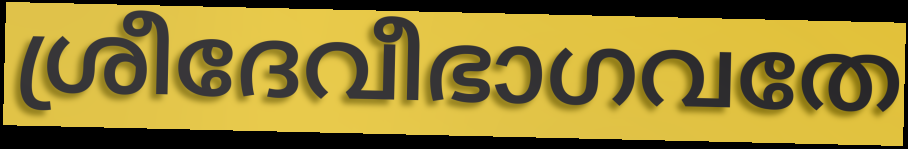
ശ്രീദേവീഭാഗവതേ